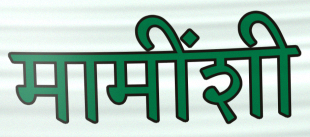
मामींशी